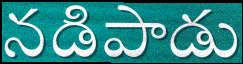
నడిపాడు